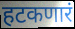
हटकणारं